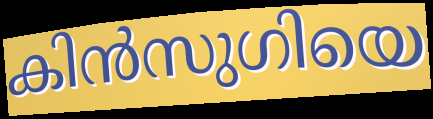
കിൻസുഗിയെ